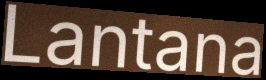
Lantana